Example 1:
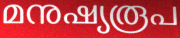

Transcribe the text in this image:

മനുഷ്യരൂപ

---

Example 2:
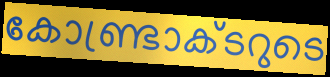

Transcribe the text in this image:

കോണ്ട്രാക്ടറുടെ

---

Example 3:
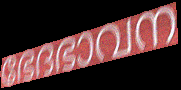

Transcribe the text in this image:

ഭേദഭാവന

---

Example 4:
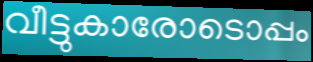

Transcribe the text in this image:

വീട്ടുകാരോടൊപ്പം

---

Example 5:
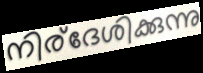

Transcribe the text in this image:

നിര്ദേശിക്കുന്നു